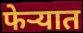
फेऱ्यात